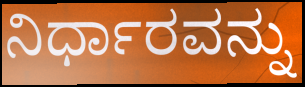
ನಿರ್ಧಾರವನ್ನು